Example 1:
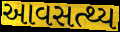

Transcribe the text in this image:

આવસત્થ્ય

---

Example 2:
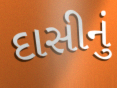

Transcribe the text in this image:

દાસીનું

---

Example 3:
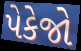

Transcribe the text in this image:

પેકેજો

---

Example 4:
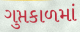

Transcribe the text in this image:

ગુપ્તકાળમાં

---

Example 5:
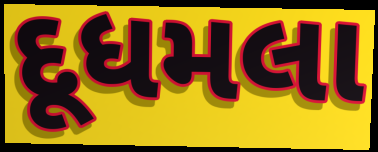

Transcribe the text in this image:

દૂધમલા